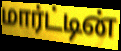
மார்ட்டின்